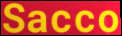
Sacco